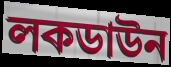
লকডাউন